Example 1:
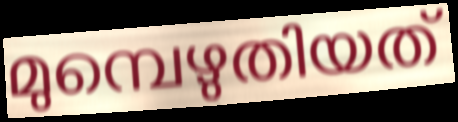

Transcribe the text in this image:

മുമ്പെഴുതിയത്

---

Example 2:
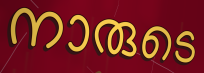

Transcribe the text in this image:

നാരുടെ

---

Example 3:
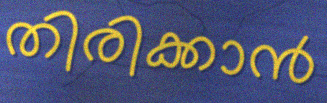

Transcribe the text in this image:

തിരിക്കാൻ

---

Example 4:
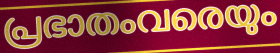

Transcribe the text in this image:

പ്രഭാതംവരെയും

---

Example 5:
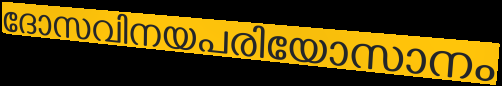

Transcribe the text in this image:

ദോസവിനയപരിയോസാനം